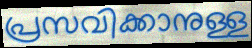
പ്രസവിക്കാനുള്ള